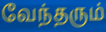
வேந்தரும்